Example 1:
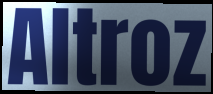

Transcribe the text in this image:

Altroz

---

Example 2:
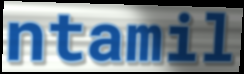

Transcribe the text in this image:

ntamil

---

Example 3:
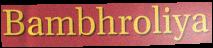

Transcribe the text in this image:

Bambhroliya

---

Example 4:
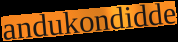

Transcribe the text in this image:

andukondidde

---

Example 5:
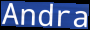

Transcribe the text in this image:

Andra